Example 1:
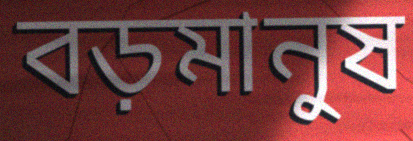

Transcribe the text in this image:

বড়মানুষ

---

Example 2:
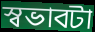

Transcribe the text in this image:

স্বভাবটা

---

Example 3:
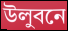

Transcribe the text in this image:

উলুবনে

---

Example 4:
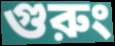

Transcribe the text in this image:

গুরুং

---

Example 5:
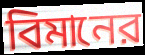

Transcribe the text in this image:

বিমানের